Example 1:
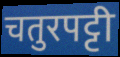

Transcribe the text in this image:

चतुरपट्टी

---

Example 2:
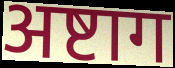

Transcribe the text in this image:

अष्टाग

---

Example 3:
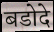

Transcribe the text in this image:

बडोदे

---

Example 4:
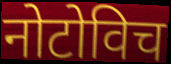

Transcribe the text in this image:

नोटोविच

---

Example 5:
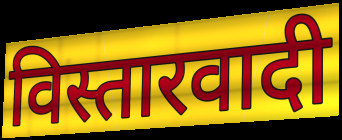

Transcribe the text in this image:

विस्तारवादी